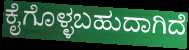
ಕೈಗೊಳ್ಳಬಹುದಾಗಿದೆ